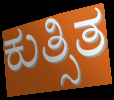
ಕುತ್ಸಿತ